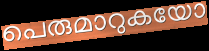
പെരുമാറുകയോ